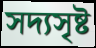
সদ্যসৃষ্ট